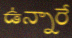
ఉన్నారే